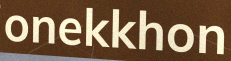
onekkhon